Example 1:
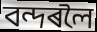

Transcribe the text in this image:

বন্দৰলৈ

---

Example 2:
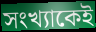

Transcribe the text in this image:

সংখ্যাকেই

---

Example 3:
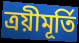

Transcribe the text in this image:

ত্ৰয়ীমূৰ্তি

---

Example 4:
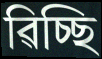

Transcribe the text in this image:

ৱিচ্ছি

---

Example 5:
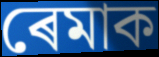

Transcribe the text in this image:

ৰেমাক